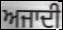
ਅਜਾਦੀ